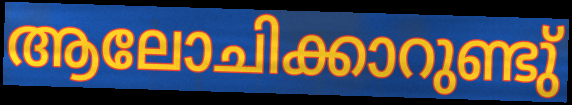
ആലോചിക്കാറുണ്ടു്